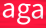
aga